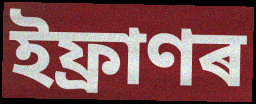
ইফ্ৰাণৰ